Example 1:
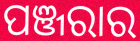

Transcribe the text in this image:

ପଞ୍ଜରାର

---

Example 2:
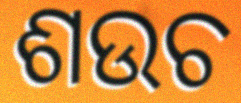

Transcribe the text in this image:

ଶଉଚ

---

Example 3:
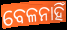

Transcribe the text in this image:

ବେଳନାହିଁ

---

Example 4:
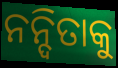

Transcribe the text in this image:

ନନ୍ଦିତାକୁ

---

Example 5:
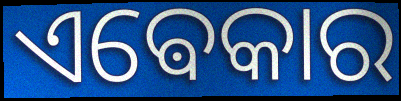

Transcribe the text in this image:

ଏଵେକାର